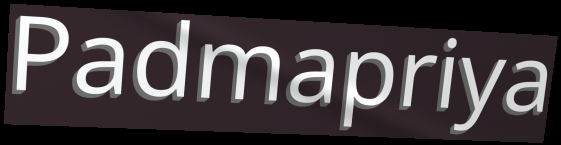
Padmapriya